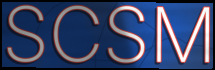
SCSM